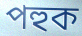
পহুক